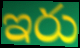
ఇరు